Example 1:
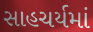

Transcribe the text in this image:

સાહચર્યમાં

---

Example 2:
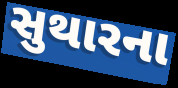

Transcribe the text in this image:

સુથારના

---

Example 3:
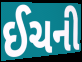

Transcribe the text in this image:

ઈચની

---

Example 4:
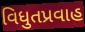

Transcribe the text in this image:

વિધુતપ્રવાહ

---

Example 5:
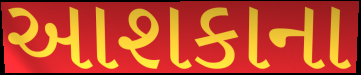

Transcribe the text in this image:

આશકાના